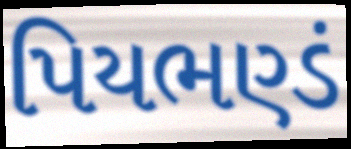
પિયભણ્ડં